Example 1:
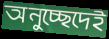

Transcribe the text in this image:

অনুচ্ছেদেই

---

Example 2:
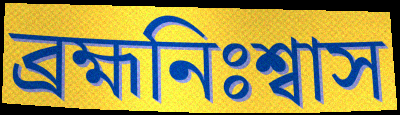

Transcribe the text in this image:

ব্রহ্মনিঃশ্বাস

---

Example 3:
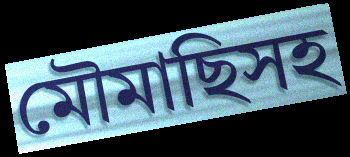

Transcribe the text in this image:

মৌমাছিসহ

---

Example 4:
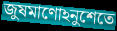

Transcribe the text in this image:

জুষমাণোঽনুশেতে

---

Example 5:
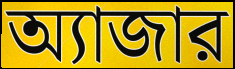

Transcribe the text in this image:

অ্যাজার